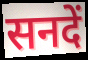
सनदें